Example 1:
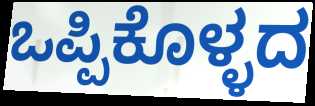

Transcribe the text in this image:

ಒಪ್ಪಿಕೊಳ್ಳದ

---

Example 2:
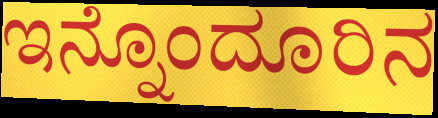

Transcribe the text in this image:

ಇನ್ನೊಂದೂರಿನ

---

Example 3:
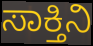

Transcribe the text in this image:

ಸಾಕ್ತಿನಿ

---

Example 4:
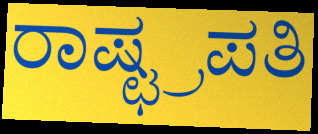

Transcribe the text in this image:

ರಾಷ್ಟ್ರಪತಿ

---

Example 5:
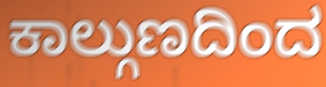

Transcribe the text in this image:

ಕಾಲ್ಗುಣದಿಂದ